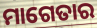
ମାଗେତାର